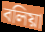
বলিয়া